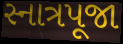
સ્નાત્રપૂજા